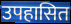
उपहासित